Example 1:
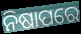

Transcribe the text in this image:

ନିଷାପରେ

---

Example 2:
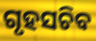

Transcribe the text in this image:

ଗୃହସଚିବ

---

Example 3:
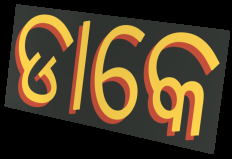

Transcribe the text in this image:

ଡାକେ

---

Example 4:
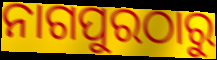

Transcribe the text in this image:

ନାଗପୁରଠାରୁ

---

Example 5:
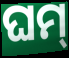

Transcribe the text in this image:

ଘମ୍